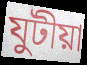
যুটীয়া